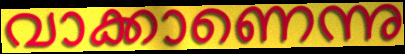
വാക്കാണെന്നു